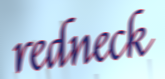
redneck